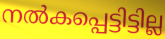
നൽകപ്പെട്ടിട്ടില്ല